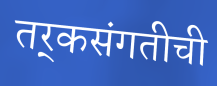
तर्कसंगतीची